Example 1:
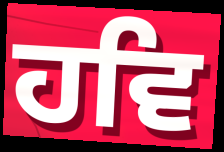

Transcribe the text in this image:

ਹਵਿ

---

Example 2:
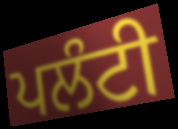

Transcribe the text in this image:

ਪਲੰਟੀ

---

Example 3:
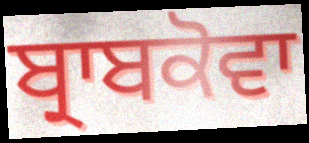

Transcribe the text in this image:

ਬ੍ਰਾਬਕੋਵਾ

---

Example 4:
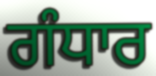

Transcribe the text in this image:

ਗੰਧਾਰ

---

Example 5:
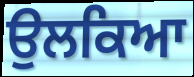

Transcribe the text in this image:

ਉਲਕਿਆ